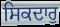
ਸਿਕਦਾਰੁ